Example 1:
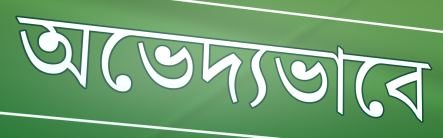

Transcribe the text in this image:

অভেদ্যভাবে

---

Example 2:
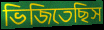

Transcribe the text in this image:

ভিজিতেছিস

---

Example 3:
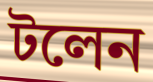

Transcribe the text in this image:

টলেন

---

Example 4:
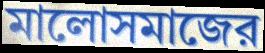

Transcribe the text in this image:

মালোসমাজের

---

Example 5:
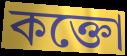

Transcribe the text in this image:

কক্তো